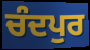
ਚੰਦਪੁਰ